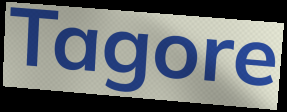
Tagore